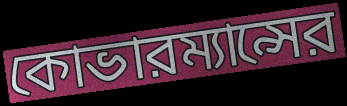
কোভারম্যান্সের